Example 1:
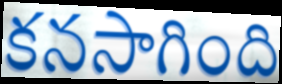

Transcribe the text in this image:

కనసాగింది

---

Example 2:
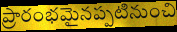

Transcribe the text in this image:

ప్రారంభమైనప్పటినుంచి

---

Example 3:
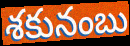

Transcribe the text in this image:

శకునంబు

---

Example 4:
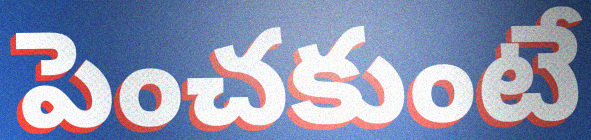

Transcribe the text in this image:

పెంచకుంటే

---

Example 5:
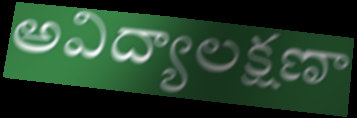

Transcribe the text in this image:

అవిద్యాలక్షణా